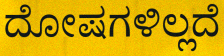
ದೋಷಗಳಿಲ್ಲದೆ